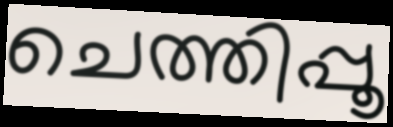
ചെത്തിപ്പൂ